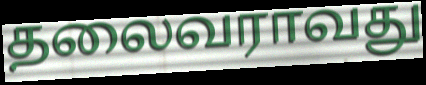
தலைவராவது